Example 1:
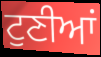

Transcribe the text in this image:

ਟੁਣੀਆਂ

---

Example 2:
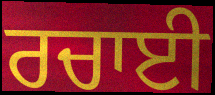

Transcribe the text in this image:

ਰਚਾਈ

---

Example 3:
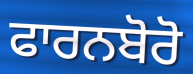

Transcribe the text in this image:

ਫਾਰਨਬੋਰੋ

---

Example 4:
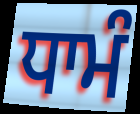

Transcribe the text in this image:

ਧਾਮੰ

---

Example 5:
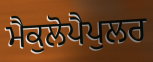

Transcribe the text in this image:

ਮੈਕੁਲੋਪੈਪੁਲਰ